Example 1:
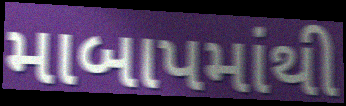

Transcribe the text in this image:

માબાપમાંથી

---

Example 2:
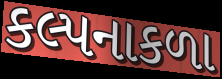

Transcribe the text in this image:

કલ્પનાકળા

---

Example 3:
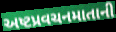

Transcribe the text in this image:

અષ્ટપ્રવચનમાતાની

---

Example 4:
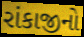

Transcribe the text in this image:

રાંકાજીનો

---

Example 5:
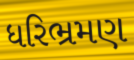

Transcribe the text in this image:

ધરિભ્રમણ